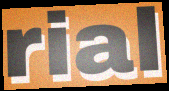
rial